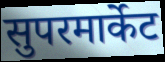
सुपरमार्केट